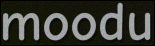
moodu